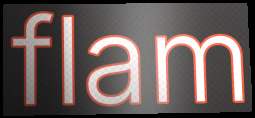
flam